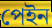
পেইন